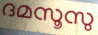
ദമസൂസു